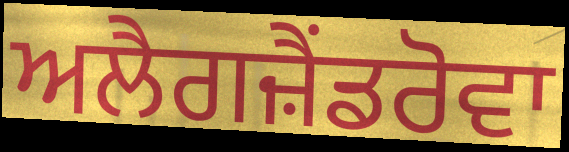
ਅਲੈਗਜ਼ੈਂਡਰੋਵਾ